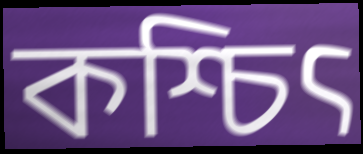
কশ্চিৎ